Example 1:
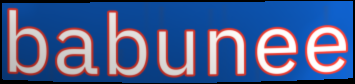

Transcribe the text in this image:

babunee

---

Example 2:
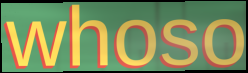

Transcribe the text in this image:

whoso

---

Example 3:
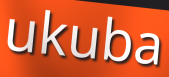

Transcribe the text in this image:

ukuba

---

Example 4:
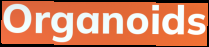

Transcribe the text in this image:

Organoids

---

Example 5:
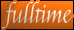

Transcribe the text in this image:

fulltime